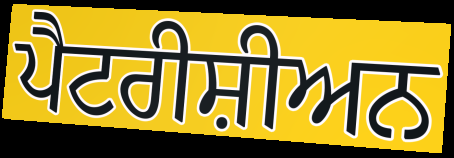
ਪੈਟਰੀਸ਼ੀਅਨ